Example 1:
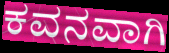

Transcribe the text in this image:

ಕವನವಾಗಿ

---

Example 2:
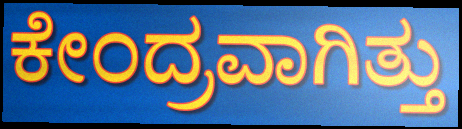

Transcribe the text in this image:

ಕೇಂದ್ರವಾಗಿತ್ತು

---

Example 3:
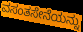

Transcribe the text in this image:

ವಸಂತಸೇನೆಯನ್ನು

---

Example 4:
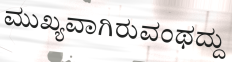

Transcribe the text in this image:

ಮುಖ್ಯವಾಗಿರುವಂಥದ್ದು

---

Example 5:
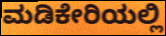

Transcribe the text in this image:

ಮಡಿಕೇರಿಯಲ್ಲಿ